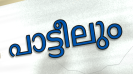
പാട്ടീലും